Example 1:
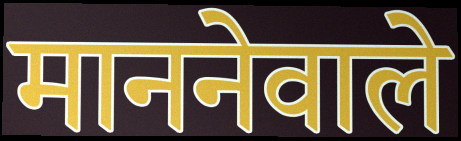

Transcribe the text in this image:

माननेवाले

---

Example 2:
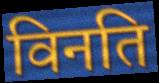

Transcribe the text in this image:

विनति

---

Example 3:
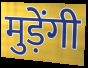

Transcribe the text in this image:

मुड़ेंगी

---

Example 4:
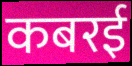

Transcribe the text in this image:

कबरई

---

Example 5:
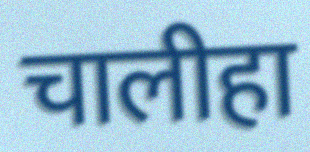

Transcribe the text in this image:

चालीहा